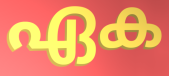
ഏക